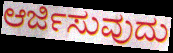
ಆರ್ಜಿಸುವುದು